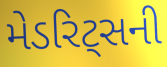
મેડરિટ્સની